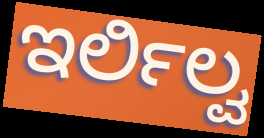
ಇರ್ಲಿಲ್ವ